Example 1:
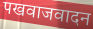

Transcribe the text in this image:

पखवाजवादन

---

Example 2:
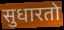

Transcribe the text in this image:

सुधारतो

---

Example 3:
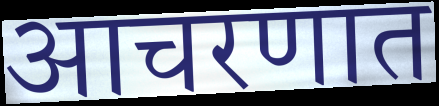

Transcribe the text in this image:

आचरणात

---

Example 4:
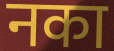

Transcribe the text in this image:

नका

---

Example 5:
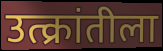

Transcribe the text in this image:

उत्क्रांतीला